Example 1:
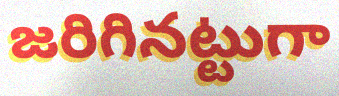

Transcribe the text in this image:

జరిగినట్టుగా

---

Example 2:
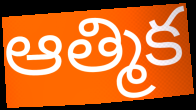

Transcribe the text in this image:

ఆత్మిక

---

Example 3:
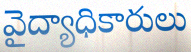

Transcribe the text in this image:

వైద్యాధికారులు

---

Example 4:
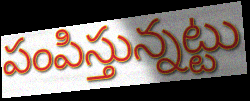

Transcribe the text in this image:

పంపిస్తున్నట్టు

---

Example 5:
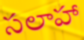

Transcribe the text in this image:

సలాహా